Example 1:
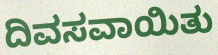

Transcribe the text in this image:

ದಿವಸವಾಯಿತು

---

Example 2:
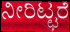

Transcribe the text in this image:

ನೀರಿಟ್ಟರೆ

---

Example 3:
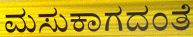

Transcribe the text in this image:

ಮಸುಕಾಗದಂತೆ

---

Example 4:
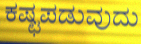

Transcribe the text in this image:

ಕಷ್ಟಪಡುವುದು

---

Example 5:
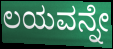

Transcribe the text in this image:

ಲಯವನ್ನೇ